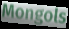
Mongols